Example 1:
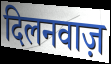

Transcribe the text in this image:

दिलनवाज़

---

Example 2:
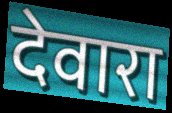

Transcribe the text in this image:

देवारा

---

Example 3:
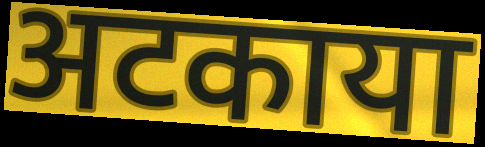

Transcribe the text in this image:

अटकाया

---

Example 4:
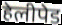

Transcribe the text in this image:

हेलीपेड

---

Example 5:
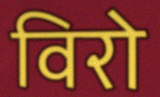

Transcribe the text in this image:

विरो